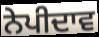
ਨੇਪੀਦਾਵ